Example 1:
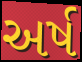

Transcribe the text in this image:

અર્ષ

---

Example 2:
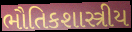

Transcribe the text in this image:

ભૌતિકશાસ્ત્રીય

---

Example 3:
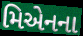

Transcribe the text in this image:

મિએનના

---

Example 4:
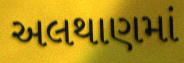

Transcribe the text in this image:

અલથાણમાં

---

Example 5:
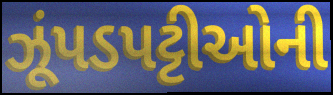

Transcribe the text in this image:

ઝૂંપડપટ્ટીઓની